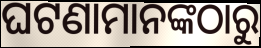
ଘଟଣାମାନଙ୍କଠାରୁ